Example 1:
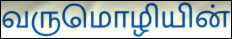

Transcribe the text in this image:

வருமொழியின்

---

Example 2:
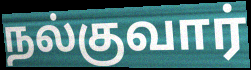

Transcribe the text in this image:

நல்குவார்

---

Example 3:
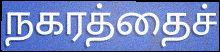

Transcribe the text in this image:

நகரத்தைச்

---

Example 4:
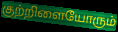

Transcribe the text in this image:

குற்றிளையோரும்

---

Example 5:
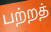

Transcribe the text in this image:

பற்றத்